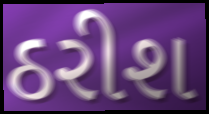
ઠરીશ